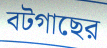
বটগাছের